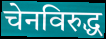
चेनविरुद्ध